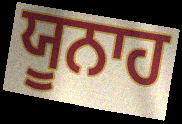
ਯੂਨਾਹ